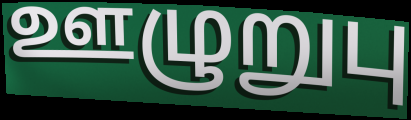
ஊழுறுபு